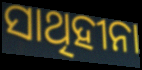
ସାଥିହୀନା